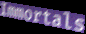
Immortals